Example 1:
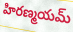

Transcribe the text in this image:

హిరణ్మయమ్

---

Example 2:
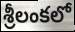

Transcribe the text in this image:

శ్రీలంకలో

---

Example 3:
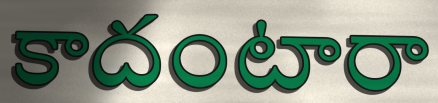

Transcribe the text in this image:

కాదంటారా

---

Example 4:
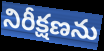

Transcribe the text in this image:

నిరీక్షణను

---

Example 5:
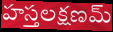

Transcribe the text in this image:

హస్తలక్షణమ్